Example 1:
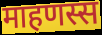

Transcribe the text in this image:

माहणस्स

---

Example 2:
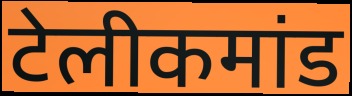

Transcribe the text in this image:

टेलीकमांड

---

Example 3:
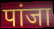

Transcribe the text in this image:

पांजा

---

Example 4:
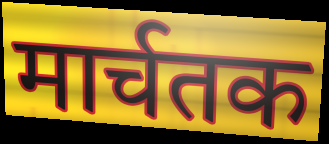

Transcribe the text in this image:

मार्चतक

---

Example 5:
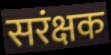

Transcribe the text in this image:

सरंक्षक